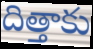
దిత్తాకు